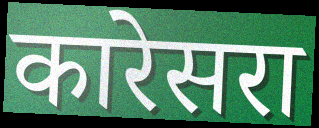
कारेसरा